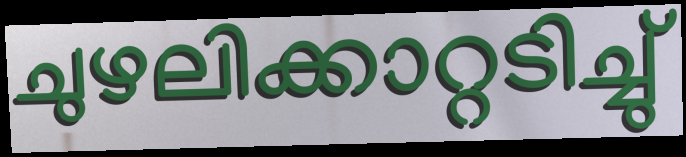
ചുഴലിക്കാറ്റടിച്ചു്